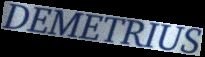
DEMETRIUS